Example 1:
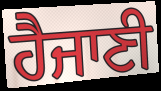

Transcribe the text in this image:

ਹੈਜਾਣੀ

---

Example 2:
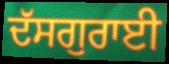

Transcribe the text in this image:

ਦੱਸਗੁਰਾਈ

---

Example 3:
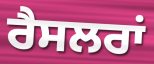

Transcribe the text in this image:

ਰੈਸਲਰਾਂ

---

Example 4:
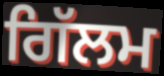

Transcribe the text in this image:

ਗਿੱਲਮ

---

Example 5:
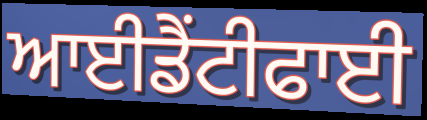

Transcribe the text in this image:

ਆਈਡੈਂਟੀਫਾਈ